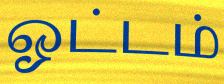
ஓட்டம்